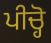
ਪੀਚ੍ਹੋ